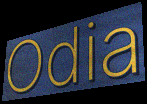
Odia